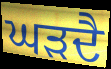
ਘੜਦੈ